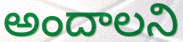
అందాలని